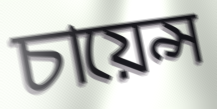
চায়েন্স